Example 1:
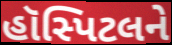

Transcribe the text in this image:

હૉસ્પિટલને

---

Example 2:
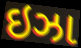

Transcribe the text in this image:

ઇઝા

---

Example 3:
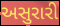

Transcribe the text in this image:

અસુરારી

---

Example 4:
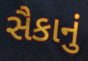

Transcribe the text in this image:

સૈકાનું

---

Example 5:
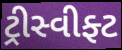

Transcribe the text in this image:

ટ્રીસ્વીફ્ટ